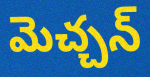
మెచ్చన్